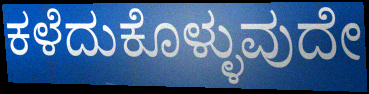
ಕಳೆದುಕೊಳ್ಳುವುದೇ